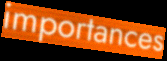
importances